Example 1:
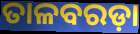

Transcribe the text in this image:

ତାଳବରଡ଼ା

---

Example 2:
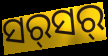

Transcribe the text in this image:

ସର୍‍ସର୍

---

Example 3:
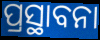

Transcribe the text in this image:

ପ୍ରସ୍ଥାବନା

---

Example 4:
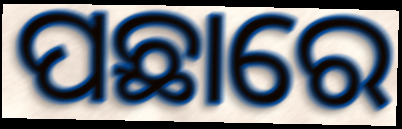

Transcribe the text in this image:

ପଛାରେ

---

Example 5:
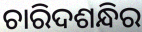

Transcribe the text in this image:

ଚାରିଦଶନ୍ଧିର